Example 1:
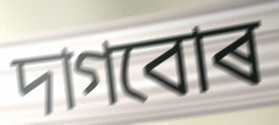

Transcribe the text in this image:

দাগবোৰ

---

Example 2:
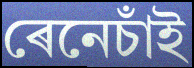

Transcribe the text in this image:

ৰেনেচাঁই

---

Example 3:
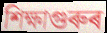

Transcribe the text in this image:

শিক্ষাগুৰুৰ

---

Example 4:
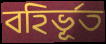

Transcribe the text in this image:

বহিৰ্ভূত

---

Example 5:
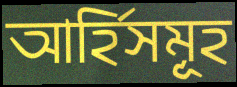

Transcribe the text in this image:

আৰ্হিসমূহ